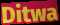
Ditwa